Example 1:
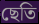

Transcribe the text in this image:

ছেতি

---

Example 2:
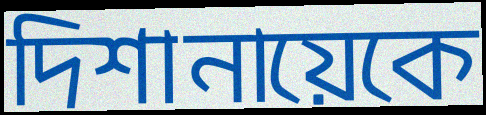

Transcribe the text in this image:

দিশানায়েকে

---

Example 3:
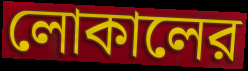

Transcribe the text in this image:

লোকালের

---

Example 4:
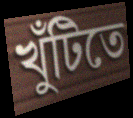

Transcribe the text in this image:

খুঁটিতে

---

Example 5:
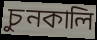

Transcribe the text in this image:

চুনকালি